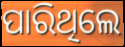
ପାରିଥିଲେ